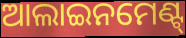
ଆଲାଇନମେଣ୍ଟ୍